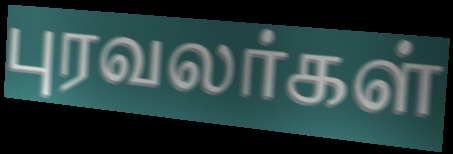
புரவலர்கள்